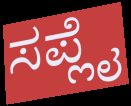
ಸಪ್ಲೈ